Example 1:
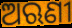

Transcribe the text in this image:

ଅଋଣୀ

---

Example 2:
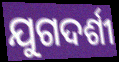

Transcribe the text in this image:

ଯୁଗଦର୍ଶୀ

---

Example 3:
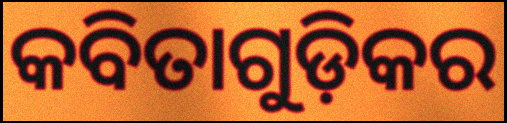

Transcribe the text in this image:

କବିତାଗୁଡ଼ିକର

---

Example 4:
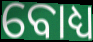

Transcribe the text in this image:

ବୋଧ୍ୟ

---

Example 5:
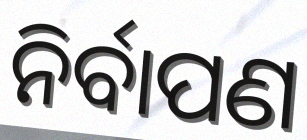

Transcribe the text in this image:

ନିର୍ବାପଣ